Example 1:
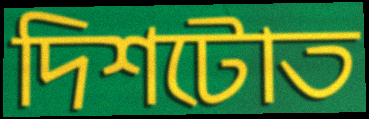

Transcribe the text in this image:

দিশটোত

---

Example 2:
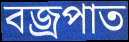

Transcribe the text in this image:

বজ্ৰপাত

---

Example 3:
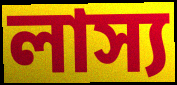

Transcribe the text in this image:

লাস্য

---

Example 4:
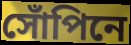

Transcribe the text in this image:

সোঁপিনে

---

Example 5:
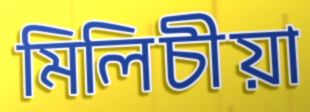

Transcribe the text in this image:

মিলিচীয়া